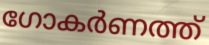
ഗോകർണത്ത്